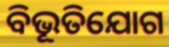
ବିଭୂତିଯୋଗ